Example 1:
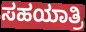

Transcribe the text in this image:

ಸಹಯಾತ್ರಿ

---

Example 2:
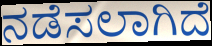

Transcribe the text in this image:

ನಡೆಸಲಾಗಿದೆ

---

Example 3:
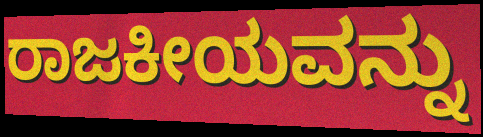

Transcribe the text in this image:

ರಾಜಕೀಯವನ್ನು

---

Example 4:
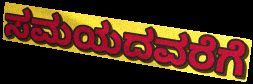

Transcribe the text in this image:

ಸಮಯದವರೆಗೆ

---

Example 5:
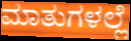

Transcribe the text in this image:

ಮಾತುಗಳಲ್ಲೆ